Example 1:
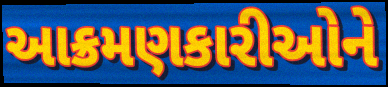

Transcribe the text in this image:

આક્રમણકારીઓને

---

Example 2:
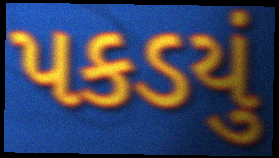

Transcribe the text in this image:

પકડયું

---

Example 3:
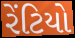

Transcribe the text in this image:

રેંટિયો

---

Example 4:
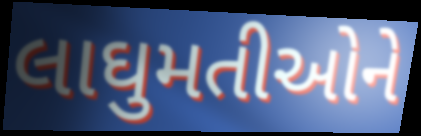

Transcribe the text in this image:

લાઘુમતીઓને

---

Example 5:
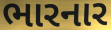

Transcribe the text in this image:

ભારનાર